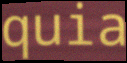
quia